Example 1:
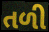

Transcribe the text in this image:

તળી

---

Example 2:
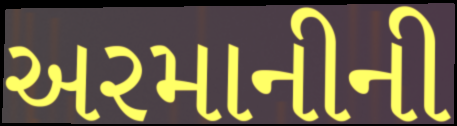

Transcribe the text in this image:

અરમાનીની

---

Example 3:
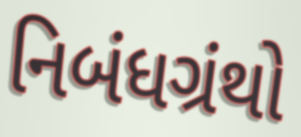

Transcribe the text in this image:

નિબંધગ્રંથો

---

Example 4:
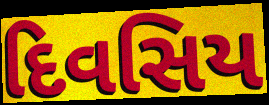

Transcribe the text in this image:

દિવસિય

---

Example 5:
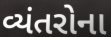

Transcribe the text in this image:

વ્યંતરોના